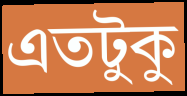
এতটুকু